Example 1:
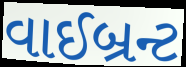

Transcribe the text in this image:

વાઈબ્રન્ટ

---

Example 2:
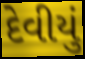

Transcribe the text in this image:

દેવીયું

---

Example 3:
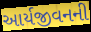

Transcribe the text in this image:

આર્યજીવનની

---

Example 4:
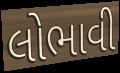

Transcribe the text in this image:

લોભાવી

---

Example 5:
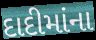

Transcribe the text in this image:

દાદીમાંના